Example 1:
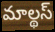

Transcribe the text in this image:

మాల్థస్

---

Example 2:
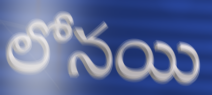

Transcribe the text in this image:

లోనయి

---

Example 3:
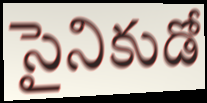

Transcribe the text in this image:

సైనికుడో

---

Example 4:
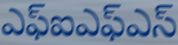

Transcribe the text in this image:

ఎఫ్ఐఎఫ్ఎస్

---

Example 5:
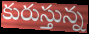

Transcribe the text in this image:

కురుస్తున్న